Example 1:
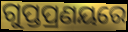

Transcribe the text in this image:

ଗୁପ୍ତପ୍ରଣୟରେ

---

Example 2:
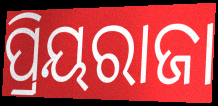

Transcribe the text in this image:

ପ୍ରିୟରାଜା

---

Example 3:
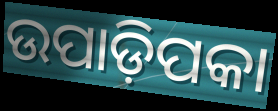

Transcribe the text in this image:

ଉପାଡ଼ିପକା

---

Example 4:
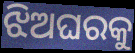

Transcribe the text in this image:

ଝିଅଘରକୁ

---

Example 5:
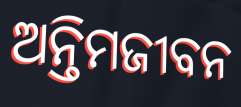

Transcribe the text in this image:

ଅନ୍ତିମଜୀବନ